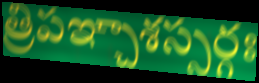
త్రిపఞ్చాశస్సర్గః